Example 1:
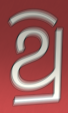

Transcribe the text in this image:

ଥ୍ରି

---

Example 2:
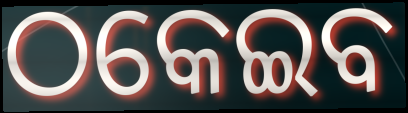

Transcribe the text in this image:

ଠକେଇବ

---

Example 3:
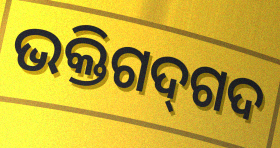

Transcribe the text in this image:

ଭକ୍ତିଗଦ୍‌ଗଦ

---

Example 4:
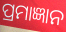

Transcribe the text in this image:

ପ୍ରମାଜ୍ଞାନ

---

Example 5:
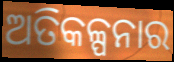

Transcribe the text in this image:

ଅତିକଳ୍ପନାର